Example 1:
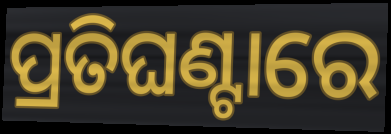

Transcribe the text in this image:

ପ୍ରତିଘଣ୍ଟାରେ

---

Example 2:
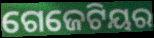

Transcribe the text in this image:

ଗେଜେଟିୟର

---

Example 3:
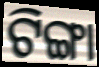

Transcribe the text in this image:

ଟିଙ୍ଗା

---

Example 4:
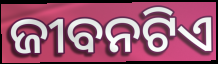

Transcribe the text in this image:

ଜୀବନଟିଏ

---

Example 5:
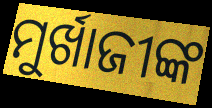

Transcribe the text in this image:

ମୁର୍ଖାଜୀଙ୍କ